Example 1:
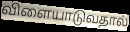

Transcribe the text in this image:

விளையாடுவதால்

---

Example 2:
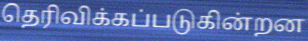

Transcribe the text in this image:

தெரிவிக்கப்படுகின்றன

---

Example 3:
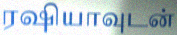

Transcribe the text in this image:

ரஷியாவுடன்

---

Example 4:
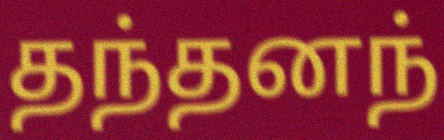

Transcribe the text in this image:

தந்தனந்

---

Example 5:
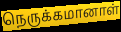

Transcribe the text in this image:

நெருக்கமானாள்